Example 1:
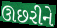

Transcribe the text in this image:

ઊછરીને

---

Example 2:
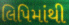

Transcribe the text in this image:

લિપિમાંથી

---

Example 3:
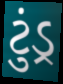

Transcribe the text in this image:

ટુંડ્ર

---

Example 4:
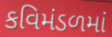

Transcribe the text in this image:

કવિમંડળમાં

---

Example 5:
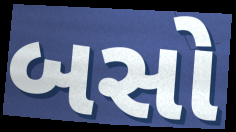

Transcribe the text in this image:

બસો